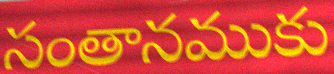
సంతానముకు